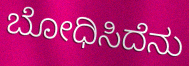
ಬೋಧಿಸಿದೆನು